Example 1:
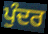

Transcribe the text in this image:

ਪੁੰਦਰ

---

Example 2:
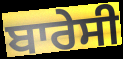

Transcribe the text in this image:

ਬਾਰੇਸੀ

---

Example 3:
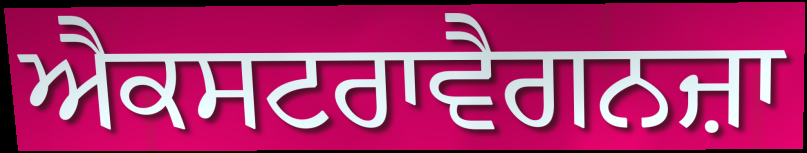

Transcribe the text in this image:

ਐਕਸਟਰਾਵੈਗਨਜ਼ਾ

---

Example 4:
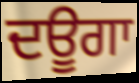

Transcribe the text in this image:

ਦਊਗਾ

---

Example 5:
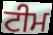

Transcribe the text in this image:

ਟੀਮ